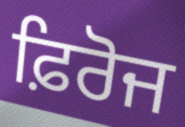
ਫ਼ਿਰੋਜ